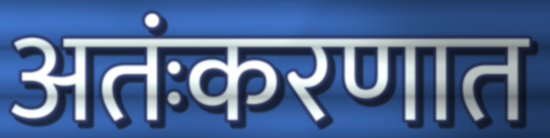
अतंःकरणात